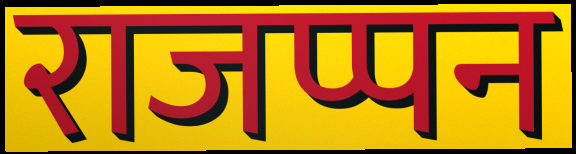
राजप्पन